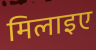
मिलाइए